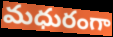
మధురంగా